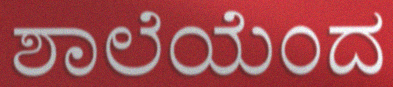
ಶಾಲೆಯೆಂದ